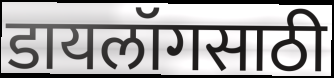
डायलॉगसाठी